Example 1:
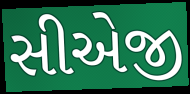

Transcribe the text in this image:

સીએજી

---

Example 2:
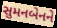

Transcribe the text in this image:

સુમનબેનને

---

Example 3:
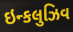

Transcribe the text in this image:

ઇન્કલુઝિવ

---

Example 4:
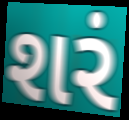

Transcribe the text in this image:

શરં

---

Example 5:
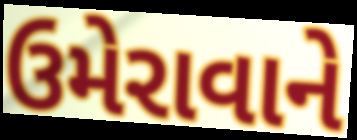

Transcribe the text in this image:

ઉમેરાવાને